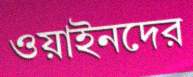
ওয়াইনদের